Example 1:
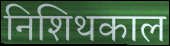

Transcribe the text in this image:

निशिथकाल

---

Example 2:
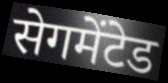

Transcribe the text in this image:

सेगमेंटेड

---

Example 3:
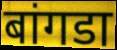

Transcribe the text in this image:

बांगडा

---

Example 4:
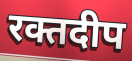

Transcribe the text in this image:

रक्तदीप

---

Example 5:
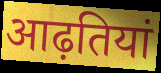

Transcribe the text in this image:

आढ़तियां